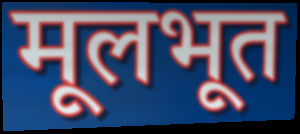
मूलभूत